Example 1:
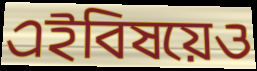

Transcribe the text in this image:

এইবিষয়েও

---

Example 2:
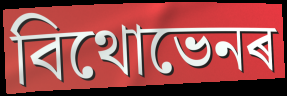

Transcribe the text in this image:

বিথোভেনৰ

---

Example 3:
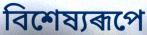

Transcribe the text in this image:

বিশেষ্যৰূপে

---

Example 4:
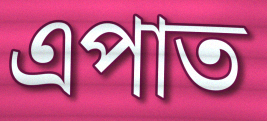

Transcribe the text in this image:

এপাত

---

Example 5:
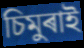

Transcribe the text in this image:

চিমুৰাই